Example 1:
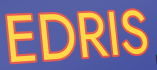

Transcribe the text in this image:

EDRIS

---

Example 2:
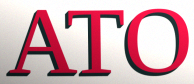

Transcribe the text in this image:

ATO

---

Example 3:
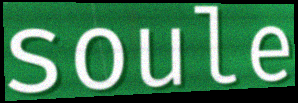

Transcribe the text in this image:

soule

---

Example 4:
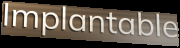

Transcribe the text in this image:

Implantable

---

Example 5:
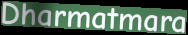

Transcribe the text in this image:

Dharmatmara